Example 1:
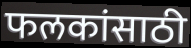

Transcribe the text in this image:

फलकांसाठी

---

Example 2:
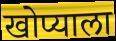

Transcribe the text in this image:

खोप्याला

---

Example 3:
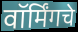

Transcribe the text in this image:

वॉर्मिंगचे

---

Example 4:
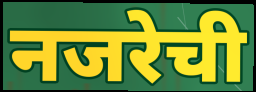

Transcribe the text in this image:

नजरेची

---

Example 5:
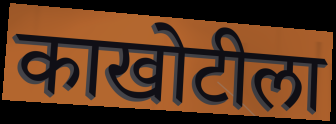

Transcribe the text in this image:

काखोटीला